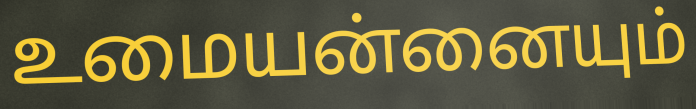
உமையன்னையும்